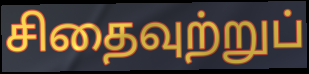
சிதைவுற்றுப்